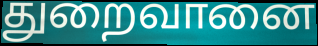
துறைவானை